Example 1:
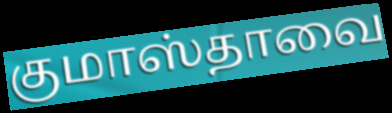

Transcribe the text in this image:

குமாஸ்தாவை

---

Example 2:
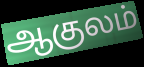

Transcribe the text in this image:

ஆகுலம்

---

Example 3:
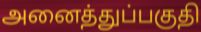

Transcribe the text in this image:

அனைத்துப்பகுதி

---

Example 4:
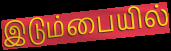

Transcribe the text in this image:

இடும்பையில்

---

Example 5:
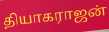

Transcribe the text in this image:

தியாகராஜன்